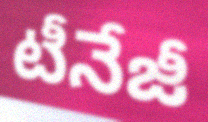
టీనేజీ